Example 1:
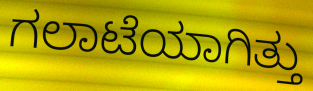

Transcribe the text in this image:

ಗಲಾಟೆಯಾಗಿತ್ತು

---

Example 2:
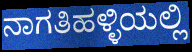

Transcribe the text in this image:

ನಾಗತಿಹಳ್ಳಿಯಲ್ಲಿ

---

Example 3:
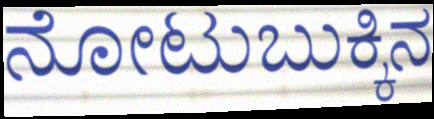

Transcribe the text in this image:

ನೋಟುಬುಕ್ಕಿನ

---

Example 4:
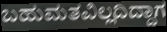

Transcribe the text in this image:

ಬಹುಮತವಿಲ್ಲದಿದ್ದಾಗ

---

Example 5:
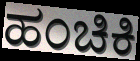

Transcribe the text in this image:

ಹಂಚಿಕಿ